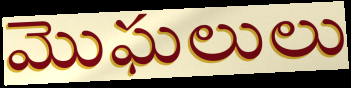
మొఘలులు